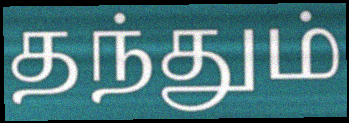
தந்தும்